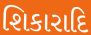
શિકારાદિ